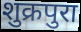
शुक्रपुरा